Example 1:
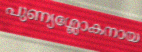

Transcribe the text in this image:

പുണ്യശ്ലോകനായ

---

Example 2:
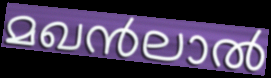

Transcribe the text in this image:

മഖൻലാൽ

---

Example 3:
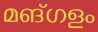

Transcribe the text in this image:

മങ്ഗളം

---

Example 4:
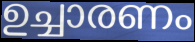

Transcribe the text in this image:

ഉച്ചാരണം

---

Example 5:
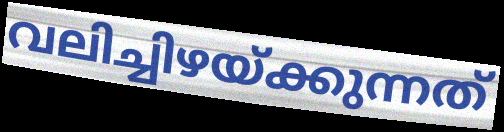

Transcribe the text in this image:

വലിച്ചിഴയ്ക്കുന്നത്